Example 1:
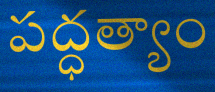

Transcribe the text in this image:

పద్ధత్యాం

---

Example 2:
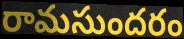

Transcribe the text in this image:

రామసుందరం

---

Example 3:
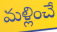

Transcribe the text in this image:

మళ్లించే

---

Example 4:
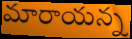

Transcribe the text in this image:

మారాయన్న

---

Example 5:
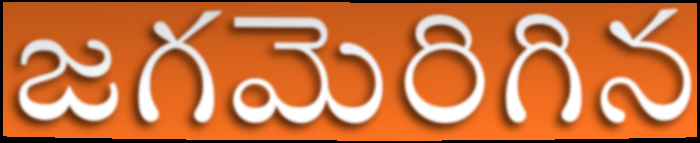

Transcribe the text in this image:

జగమెరిగిన